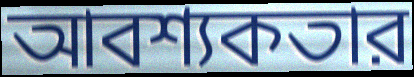
আবশ্যকতার